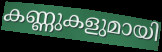
കണ്ണുകളുമായി